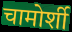
चामोर्शी